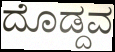
ದೊಡ್ದವ